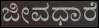
ಜೀವಧಾರೆ